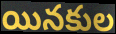
యినకుల